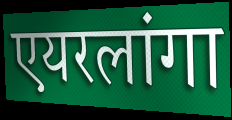
एयरलांगा